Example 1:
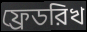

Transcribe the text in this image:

ফ্রেডরিখ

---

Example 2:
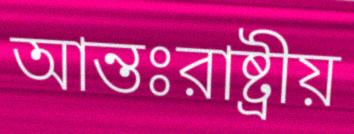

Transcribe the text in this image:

আন্তঃরাষ্ট্রীয়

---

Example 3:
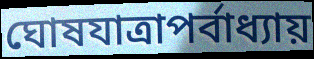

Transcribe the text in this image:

ঘোষযাত্রাপর্বাধ্যায়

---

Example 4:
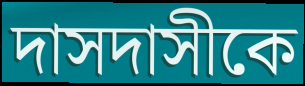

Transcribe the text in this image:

দাসদাসীকে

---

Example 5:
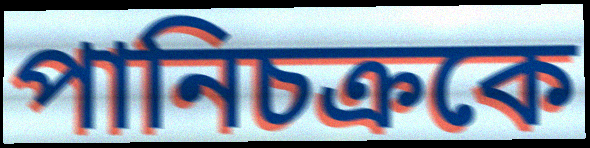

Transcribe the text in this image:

পানিচক্রকে